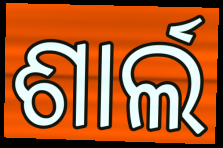
ଶାର୍ଲ